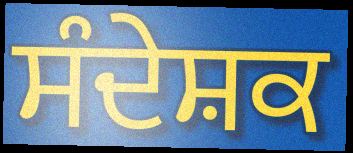
ਸੰਦੇਸ਼ਕ